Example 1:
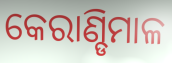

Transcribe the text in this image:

କେରାଣ୍ଡିମାଳ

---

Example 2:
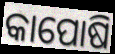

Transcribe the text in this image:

କାପୋଷି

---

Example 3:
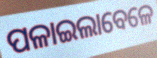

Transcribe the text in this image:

ପଳାଇଲାବେଳେ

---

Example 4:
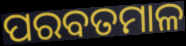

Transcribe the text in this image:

ପରବତମାଳ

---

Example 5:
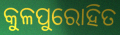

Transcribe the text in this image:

କୁଳପୁରୋହିତ